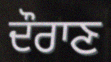
ਦੌਰਾਣ